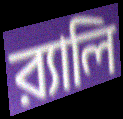
র‍্যালি